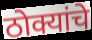
ठोक्यांचे